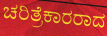
ಚರಿತ್ರೆಕಾರರಾದ